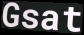
Gsat